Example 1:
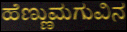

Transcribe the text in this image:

ಹೆಣ್ಣುಮಗುವಿನ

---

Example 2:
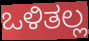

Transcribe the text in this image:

ಒಳಿತಲ್ಲ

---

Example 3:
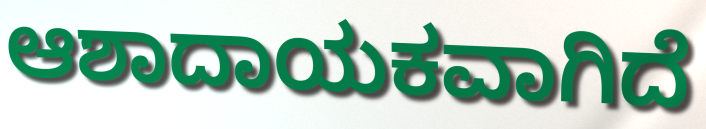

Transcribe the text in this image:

ಆಶಾದಾಯಕವಾಗಿದೆ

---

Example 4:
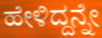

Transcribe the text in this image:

ಹೇಳಿದ್ದನ್ನೇ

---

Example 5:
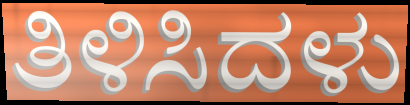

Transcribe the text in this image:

ತಿಳಿಸಿದಳು